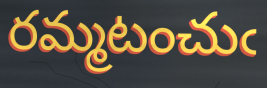
రమ్మటంచుఁ